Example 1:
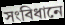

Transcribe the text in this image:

সংবিধানে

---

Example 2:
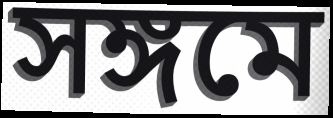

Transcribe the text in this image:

সঙ্গমে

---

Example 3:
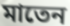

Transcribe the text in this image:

মাতেন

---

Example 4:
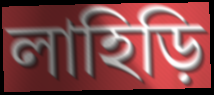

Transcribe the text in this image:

লাহিড়ি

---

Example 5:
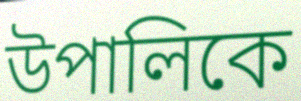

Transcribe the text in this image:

উপালিকে